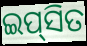
ଇପ୍‍ସିତ